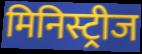
मिनिस्ट्रीज